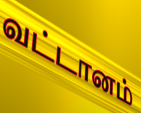
வட்டானம்